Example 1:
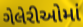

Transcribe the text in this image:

ગેલેરીઓમાં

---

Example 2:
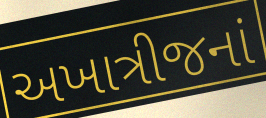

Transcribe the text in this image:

અખાત્રીજનાં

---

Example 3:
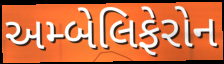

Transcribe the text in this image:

અમ્બેલિફેરોન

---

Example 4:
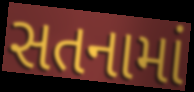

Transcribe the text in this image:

સતનામાં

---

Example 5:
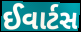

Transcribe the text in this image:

ઈવાર્ટસ